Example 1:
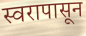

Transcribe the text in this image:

स्वरापासून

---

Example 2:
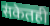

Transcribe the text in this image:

संकेतही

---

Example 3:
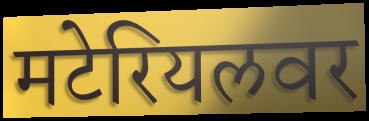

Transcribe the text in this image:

मटेरियलवर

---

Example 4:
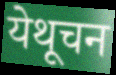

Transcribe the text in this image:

येथूचन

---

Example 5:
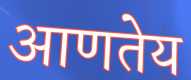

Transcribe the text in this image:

आणतेय